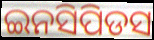
ଇନସିପିଡସ